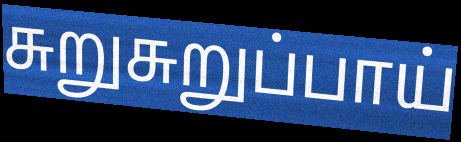
சுறுசுறுப்பாய்